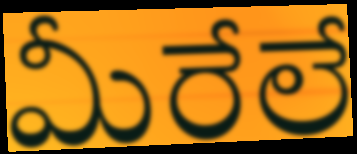
మీరేలే